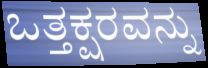
ಒತ್ತಕ್ಷರವನ್ನು